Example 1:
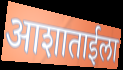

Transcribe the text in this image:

आशाताईला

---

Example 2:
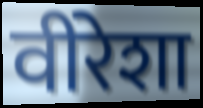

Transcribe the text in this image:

वीरेशा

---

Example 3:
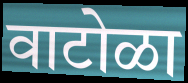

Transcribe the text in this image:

वाटोळा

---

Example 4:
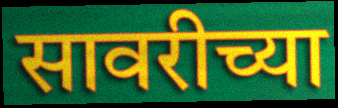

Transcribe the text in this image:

सावरीच्या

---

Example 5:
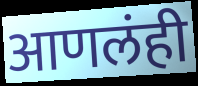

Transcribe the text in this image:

आणलंही